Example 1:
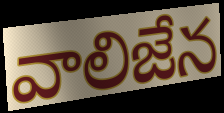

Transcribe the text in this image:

వాలిజేన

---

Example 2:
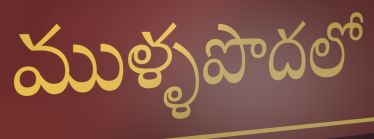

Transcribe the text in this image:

ముళ్ళపొదలో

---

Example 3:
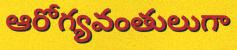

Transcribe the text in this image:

ఆరోగ్యవంతులుగా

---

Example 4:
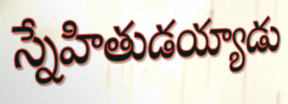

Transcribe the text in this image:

స్నేహితుడయ్యాడు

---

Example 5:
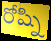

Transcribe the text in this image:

రోష్ని